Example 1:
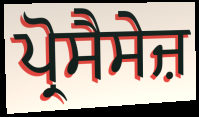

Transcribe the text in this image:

ਪ੍ਰੋਸੈਸੇਜ਼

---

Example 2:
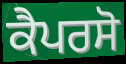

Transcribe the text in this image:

ਕੈਪਰਸੋ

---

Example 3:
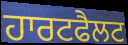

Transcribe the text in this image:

ਹਾਰਟਫੈਲਟ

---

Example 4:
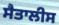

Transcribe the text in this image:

ਸੈਤਾਲੀਸ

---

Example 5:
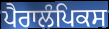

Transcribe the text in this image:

ਪੈਰਾਲੰਪਿਕਸ